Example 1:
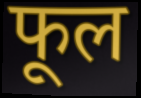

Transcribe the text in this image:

फूल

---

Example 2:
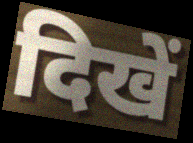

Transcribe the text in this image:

दिखें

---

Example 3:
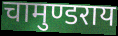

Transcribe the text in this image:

चामुण्डराय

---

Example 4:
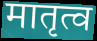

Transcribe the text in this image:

मातृत्व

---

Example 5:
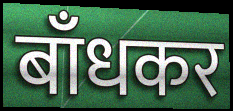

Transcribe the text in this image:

बाँधकर